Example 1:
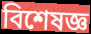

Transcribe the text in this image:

বিশেষজ্ঞ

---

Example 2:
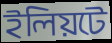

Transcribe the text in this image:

ইলিয়টে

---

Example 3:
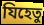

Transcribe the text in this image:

যিহেতু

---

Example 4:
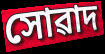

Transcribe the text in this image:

সোৱাদ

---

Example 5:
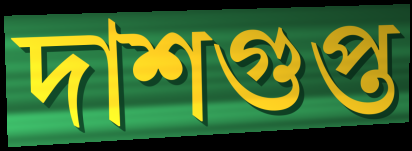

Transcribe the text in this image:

দাশগুপ্ত